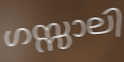
ഗസ്സാലി